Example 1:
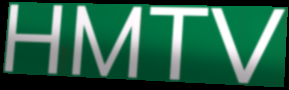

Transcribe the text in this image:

HMTV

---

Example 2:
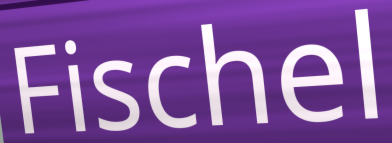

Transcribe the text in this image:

Fischel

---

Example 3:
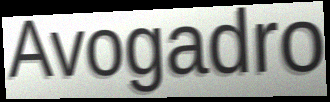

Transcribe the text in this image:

Avogadro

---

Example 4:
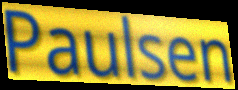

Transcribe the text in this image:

Paulsen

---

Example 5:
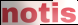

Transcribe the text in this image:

notis